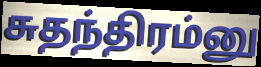
சுதந்திரம்னு